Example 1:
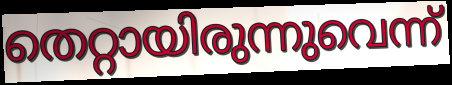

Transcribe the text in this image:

തെറ്റായിരുന്നുവെന്ന്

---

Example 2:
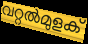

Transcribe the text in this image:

വറ്റൽമുളക്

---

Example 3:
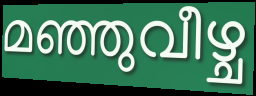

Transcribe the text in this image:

മഞ്ഞുവീഴ്ച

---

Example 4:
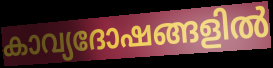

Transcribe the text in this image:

കാവ്യദോഷങ്ങളിൽ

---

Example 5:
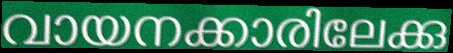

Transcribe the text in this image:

വായനക്കാരിലേക്കു